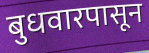
बुधवारपासून